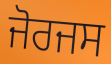
ਜੋਰਜਸ